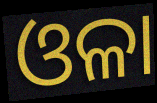
ଓଳା